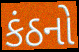
કંઠનો